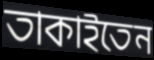
তাকাইতেন